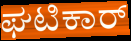
ಘಟಿಕಾರ್